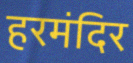
हरमंदिर